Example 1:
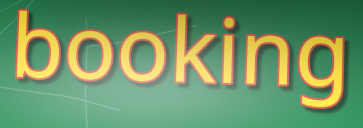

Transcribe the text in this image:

booking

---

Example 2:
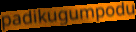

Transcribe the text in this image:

padikugumpodu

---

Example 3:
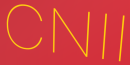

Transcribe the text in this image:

CNII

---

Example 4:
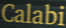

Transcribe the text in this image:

Calabi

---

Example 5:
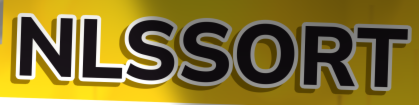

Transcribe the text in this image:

NLSSORT